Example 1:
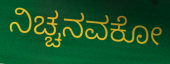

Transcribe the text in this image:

ನಿಚ್ಚನವಕೋ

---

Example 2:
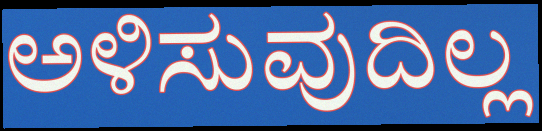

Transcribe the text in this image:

ಅಳಿಸುವುದಿಲ್ಲ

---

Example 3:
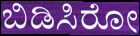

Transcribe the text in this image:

ಬಿಡಿಸಿರೋ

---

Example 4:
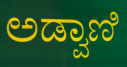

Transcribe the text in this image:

ಅಡ್ವಾಣಿ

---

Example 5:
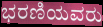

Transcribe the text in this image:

ಭರಣಿಯವರು